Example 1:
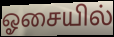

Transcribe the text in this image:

ஓசையில்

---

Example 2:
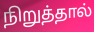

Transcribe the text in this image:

நிறுத்தால்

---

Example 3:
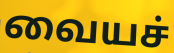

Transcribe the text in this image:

வையச்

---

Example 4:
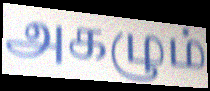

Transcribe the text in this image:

அகழும்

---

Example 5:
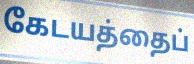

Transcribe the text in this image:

கேடயத்தைப்